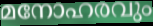
മനോഹരവും